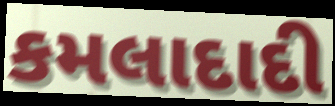
કમલાદાદી